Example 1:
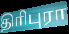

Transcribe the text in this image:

திரிபுரா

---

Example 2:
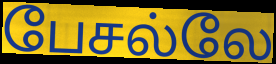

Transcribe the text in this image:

பேசல்லே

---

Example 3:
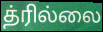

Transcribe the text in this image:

த்ரில்லை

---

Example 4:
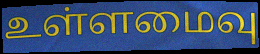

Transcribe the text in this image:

உள்ளமைவு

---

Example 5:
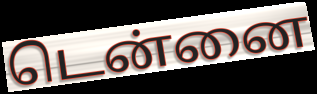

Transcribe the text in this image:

டென்னை